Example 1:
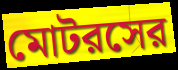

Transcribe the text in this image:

মোটরসের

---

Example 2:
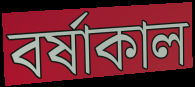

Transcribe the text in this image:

বর্ষাকাল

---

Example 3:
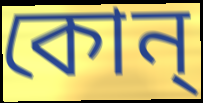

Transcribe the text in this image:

কোন্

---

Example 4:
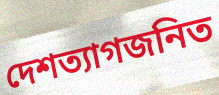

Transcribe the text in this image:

দেশত্যাগজনিত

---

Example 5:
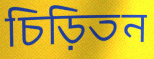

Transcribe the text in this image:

চিড়িতন